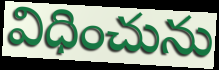
విధించును